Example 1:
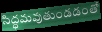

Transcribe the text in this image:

సిద్ధమవుతుండడంతో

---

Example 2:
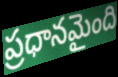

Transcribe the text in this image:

ప్రధానమైంది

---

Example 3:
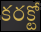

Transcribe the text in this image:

కరక్టో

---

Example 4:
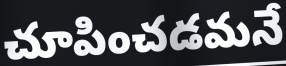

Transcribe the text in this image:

చూపించడమనే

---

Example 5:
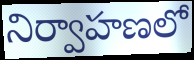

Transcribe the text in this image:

నిర్వాహణలో